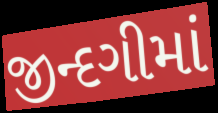
જીન્દગીમાં